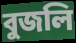
বুজলি